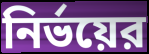
নির্ভয়ের